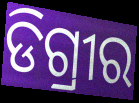
ଡିଗ୍ରୀର